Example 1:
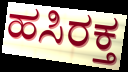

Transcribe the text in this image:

ಹಸಿರಕ್ತ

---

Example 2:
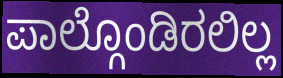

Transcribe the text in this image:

ಪಾಲ್ಗೊಂಡಿರಲಿಲ್ಲ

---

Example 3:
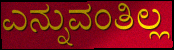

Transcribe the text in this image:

ಎನ್ನುವಂತಿಲ್ಲ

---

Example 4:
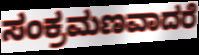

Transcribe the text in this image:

ಸಂಕ್ರಮಣವಾದರೆ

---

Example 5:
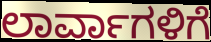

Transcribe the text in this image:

ಲಾರ್ವಾಗಳಿಗೆ